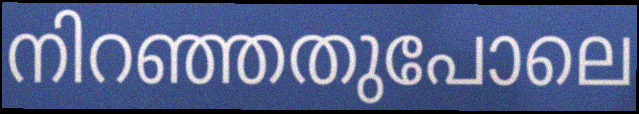
നിറഞ്ഞതുപോലെ